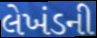
લેખંડની